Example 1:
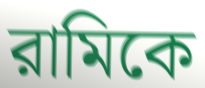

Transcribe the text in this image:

রামিকে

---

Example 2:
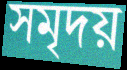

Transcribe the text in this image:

সমৃদয়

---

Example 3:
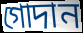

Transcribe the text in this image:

গোদান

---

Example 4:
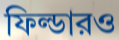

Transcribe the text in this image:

ফিল্ডারও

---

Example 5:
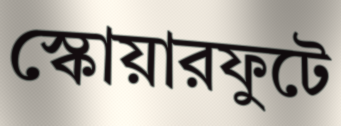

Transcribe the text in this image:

স্কোয়ারফুটে